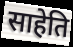
साहेति